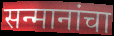
सन्मानांचा